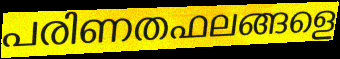
പരിണതഫലങ്ങളെ